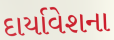
દાર્યાવેશના